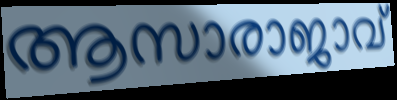
ആസാരാജാവ്